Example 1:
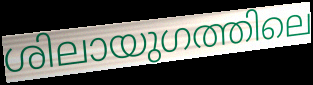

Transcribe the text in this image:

ശിലായുഗത്തിലെ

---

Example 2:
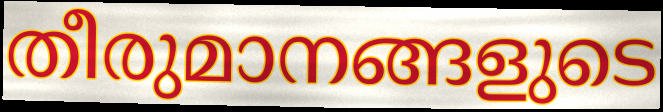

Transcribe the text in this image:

തീരുമാനങ്ങളുടെ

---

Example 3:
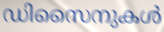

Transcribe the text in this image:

ഡിസൈനുകൾ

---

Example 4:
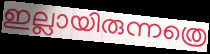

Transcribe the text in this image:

ഇല്ലായിരുന്നത്രെ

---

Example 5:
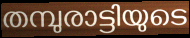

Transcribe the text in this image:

തമ്പുരാട്ടിയുടെ